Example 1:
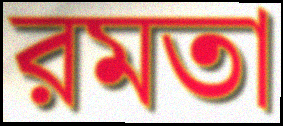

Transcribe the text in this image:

রমতা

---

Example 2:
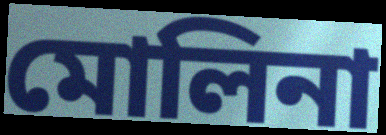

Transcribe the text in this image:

মোলিনা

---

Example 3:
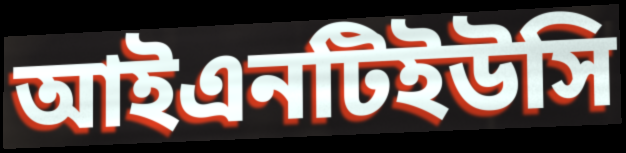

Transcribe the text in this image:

আইএনটিইউসি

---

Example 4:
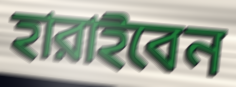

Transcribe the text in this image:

হারাইবেন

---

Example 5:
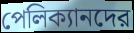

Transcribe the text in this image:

পেলিক্যানদের